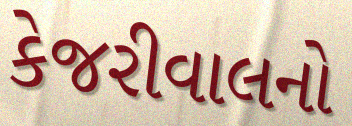
કેજરીવાલનો